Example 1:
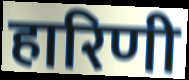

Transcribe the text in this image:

हारिणी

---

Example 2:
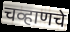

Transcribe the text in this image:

चव्हाणचे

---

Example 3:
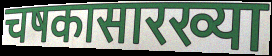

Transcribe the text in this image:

चषकासारख्या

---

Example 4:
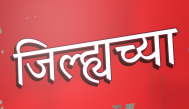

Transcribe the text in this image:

जिल्ह्यच्या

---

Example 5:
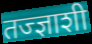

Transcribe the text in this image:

तज्ज्ञाशी